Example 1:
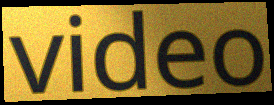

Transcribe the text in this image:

video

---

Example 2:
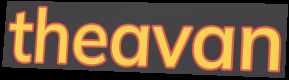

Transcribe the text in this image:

theavan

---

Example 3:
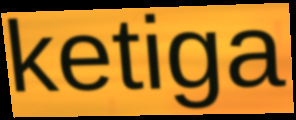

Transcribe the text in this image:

ketiga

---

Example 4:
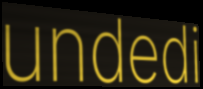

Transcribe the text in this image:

undedi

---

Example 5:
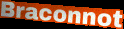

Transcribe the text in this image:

Braconnot